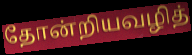
தோன்றியவழித்